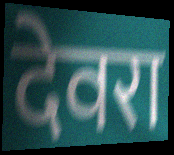
देवरा